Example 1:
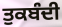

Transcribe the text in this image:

ਤੁਕਬੰਦੀ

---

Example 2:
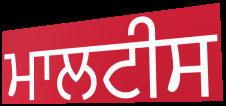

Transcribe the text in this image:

ਮਾਲਟੀਸ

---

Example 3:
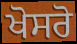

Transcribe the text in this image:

ਖੋਸਰੋ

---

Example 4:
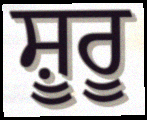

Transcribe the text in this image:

ਸ਼ੂਰੂ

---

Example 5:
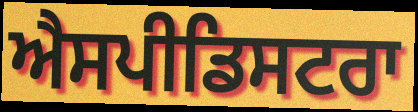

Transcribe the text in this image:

ਐਸਪੀਡਿਸਟਰਾ